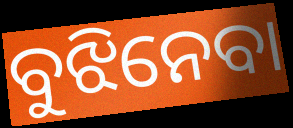
ବୁଝିନେବା